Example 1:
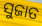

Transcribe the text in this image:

ସୁଜାତ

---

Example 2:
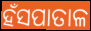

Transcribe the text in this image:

ହଁସପାତାଳ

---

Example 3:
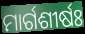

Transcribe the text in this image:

ମାର୍ଗଶୀର୍ଷଃ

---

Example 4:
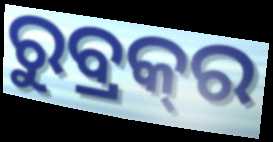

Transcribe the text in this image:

ରୁବ୍ରକ୍‍ର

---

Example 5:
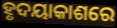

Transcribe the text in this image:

ହୃଦୟାକାଶରେ